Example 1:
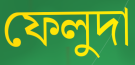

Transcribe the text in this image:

ফেলুদা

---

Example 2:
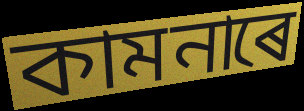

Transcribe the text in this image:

কামনাৰে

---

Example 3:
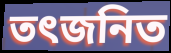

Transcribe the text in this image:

তৎজনিত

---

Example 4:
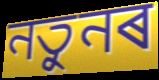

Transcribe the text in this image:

নতুনৰ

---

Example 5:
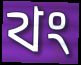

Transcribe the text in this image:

থং